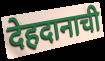
देहदानाची